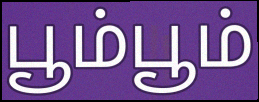
பூம்பூம்